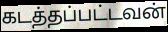
கடத்தப்பட்டவன்